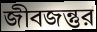
জীবজন্তুর